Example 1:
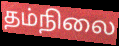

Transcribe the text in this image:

தம்நிலை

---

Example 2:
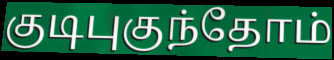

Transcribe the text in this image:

குடிபுகுந்தோம்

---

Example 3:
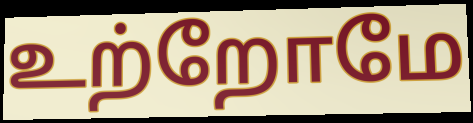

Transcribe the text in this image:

உற்றோமே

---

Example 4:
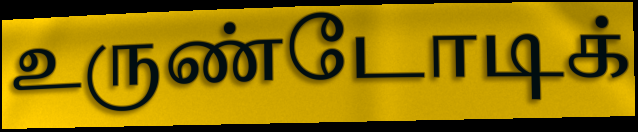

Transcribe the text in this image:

உருண்டோடிக்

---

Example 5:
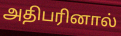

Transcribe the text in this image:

அதிபரினால்